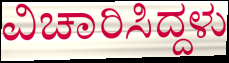
ವಿಚಾರಿಸಿದ್ದಳು